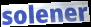
solener